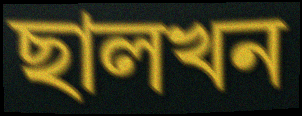
ছালখন